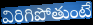
విరిగిపోతుంటే